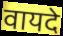
वायदे